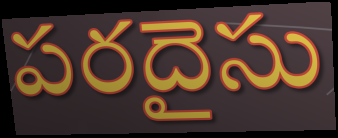
పరదైసు